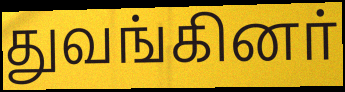
துவங்கினர்